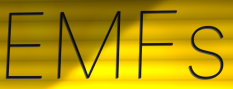
EMFs